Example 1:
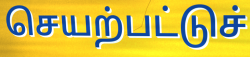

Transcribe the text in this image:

செயற்பட்டுச்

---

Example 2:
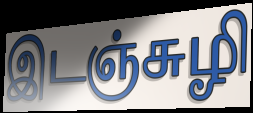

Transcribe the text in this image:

இடஞ்சுழி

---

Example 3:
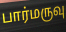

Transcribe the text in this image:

பார்மருவு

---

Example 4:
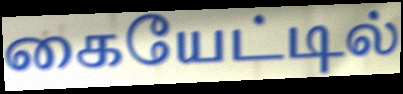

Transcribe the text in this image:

கையேட்டில்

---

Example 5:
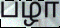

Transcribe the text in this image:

பழா